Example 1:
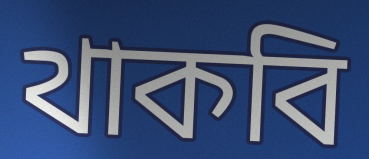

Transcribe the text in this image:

থাকবি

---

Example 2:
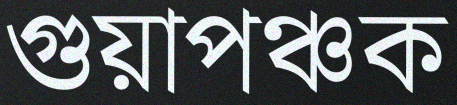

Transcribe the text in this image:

গুয়াপঞ্চক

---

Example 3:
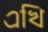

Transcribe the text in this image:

এখি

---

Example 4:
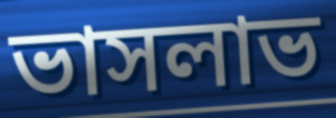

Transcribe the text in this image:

ভাসলাভ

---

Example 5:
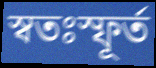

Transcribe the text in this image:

স্বতঃস্ফূর্ত